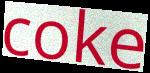
coke